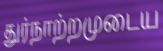
துர்நாற்றமுடைய